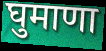
घुमाणा